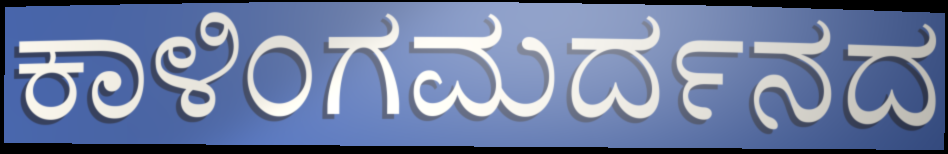
ಕಾಳಿಂಗಮರ್ದನದ